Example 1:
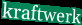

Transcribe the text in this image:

kraftwerk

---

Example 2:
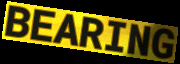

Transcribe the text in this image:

BEARING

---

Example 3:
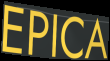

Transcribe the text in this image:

EPICA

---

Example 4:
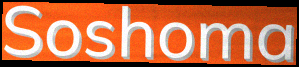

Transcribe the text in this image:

Soshoma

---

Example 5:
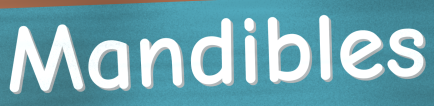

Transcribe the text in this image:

Mandibles